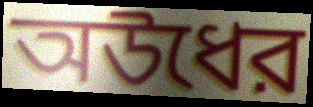
অউধের